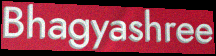
Bhagyashree